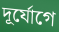
দূর্যোগে